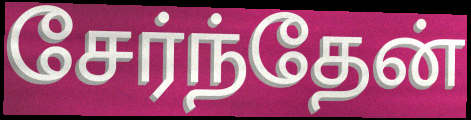
சேர்ந்தேன்